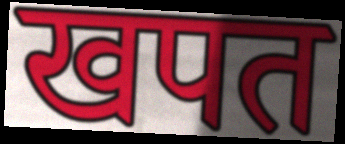
खपत